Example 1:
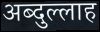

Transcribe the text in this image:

अब्दुल्लाह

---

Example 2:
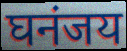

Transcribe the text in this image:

घनंजय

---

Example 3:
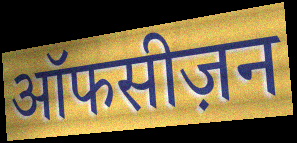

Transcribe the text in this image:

ऑफसीज़न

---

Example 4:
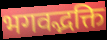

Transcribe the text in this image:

भगवद्भक्ति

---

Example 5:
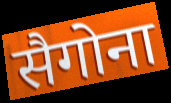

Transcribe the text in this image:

सैगोना